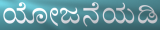
ಯೋಜನೆಯಡಿ